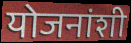
योजनांशी